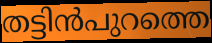
തട്ടിൻപുറത്തെ